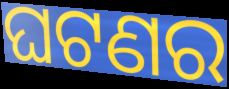
ଘଟଣର